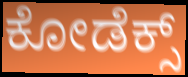
ಕೋಡೆಕ್ಸ್